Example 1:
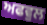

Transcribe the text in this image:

ਅਫਵੁਲ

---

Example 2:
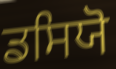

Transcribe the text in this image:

ਡਸਿਯੋ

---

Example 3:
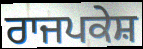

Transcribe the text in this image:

ਰਾਜਪਕੇਸ਼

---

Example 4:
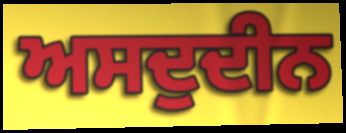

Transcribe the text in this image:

ਅਸਦੁਦੀਨ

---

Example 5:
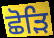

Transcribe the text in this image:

ਛੋੜਿ